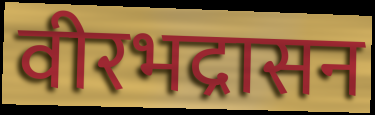
वीरभद्रासन